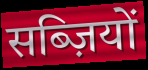
सब्ज़ियों